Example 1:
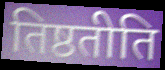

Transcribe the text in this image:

तिष्ठतीति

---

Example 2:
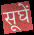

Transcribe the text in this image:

सूघें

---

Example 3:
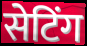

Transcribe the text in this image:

सेटिंग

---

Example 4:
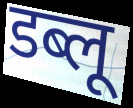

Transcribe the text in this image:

डब्लू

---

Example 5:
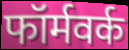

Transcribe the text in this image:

फॉर्मवर्क